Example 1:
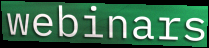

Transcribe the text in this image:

webinars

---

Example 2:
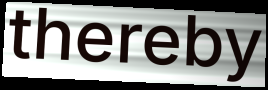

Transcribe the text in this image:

thereby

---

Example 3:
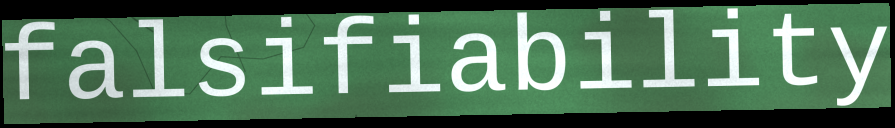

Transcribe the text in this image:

falsifiability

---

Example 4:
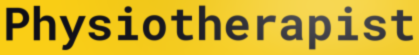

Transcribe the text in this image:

Physiotherapist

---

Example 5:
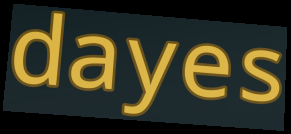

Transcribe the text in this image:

dayes